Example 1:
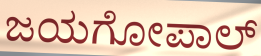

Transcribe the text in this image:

ಜಯಗೋಪಾಲ್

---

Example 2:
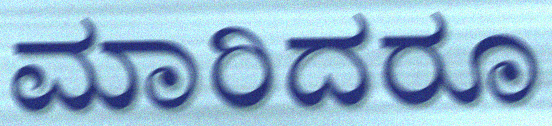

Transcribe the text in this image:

ಮಾರಿದರೂ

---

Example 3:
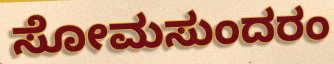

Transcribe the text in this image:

ಸೋಮಸುಂದರಂ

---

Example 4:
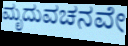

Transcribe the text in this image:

ಮೃದುವಚನವೇ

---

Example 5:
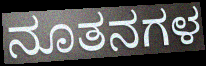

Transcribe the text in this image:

ನೂತನಗಳ